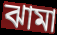
ঝামা